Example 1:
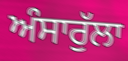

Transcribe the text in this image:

ਅੰਸਾਰੁੱਲਾ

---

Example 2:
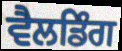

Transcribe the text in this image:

ਵੈਲਡਿੰਗ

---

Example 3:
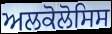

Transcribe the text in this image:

ਅਲਕੋਲੋਸਿਸ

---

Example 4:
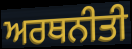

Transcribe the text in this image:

ਅਰਥਨੀਤੀ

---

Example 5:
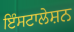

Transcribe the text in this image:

ਇੰਸਟਾਲੇਸ਼ਨ